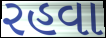
રહવા